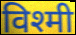
विश्मी